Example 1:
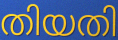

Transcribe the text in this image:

തിയതി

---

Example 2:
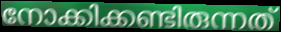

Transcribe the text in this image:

നോക്കിക്കണ്ടിരുന്നത്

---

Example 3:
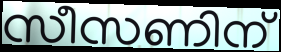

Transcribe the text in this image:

സീസണിന്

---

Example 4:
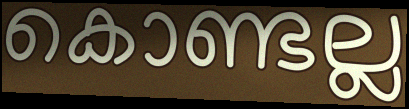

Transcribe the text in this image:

കൊണ്ടല്ല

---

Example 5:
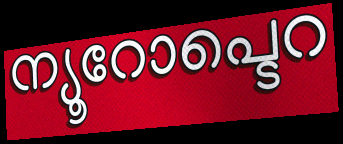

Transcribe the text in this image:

ന്യൂറോപ്ടെറ